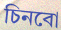
চিনবো